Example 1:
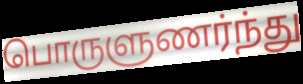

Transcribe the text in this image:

பொருளுணர்ந்து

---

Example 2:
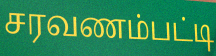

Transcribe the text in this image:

சரவணம்பட்டி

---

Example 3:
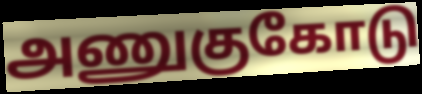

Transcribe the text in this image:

அணுகுகோடு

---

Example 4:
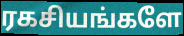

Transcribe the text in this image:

ரகசியங்களே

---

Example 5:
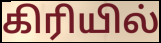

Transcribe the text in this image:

கிரியில்